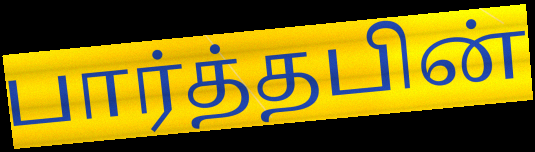
பார்த்தபின்